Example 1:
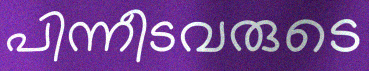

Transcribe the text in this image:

പിന്നീടവരുടെ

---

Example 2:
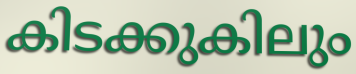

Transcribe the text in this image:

കിടക്കുകിലും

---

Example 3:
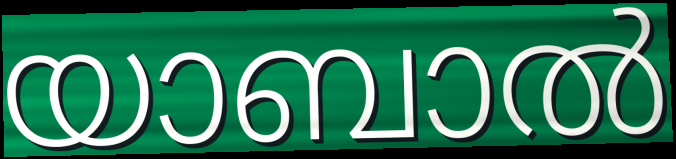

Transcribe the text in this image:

യാബാൽ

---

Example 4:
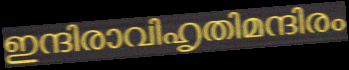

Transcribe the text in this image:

ഇന്ദിരാവിഹൃതിമന്ദിരം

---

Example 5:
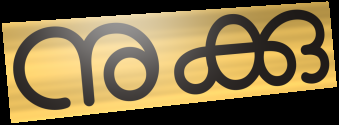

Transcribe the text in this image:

നുക്കു